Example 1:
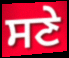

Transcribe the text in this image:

ਸਣੇ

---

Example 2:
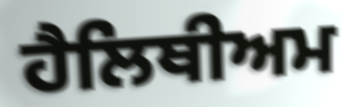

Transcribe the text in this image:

ਹੈਲਿਥੀਅਮ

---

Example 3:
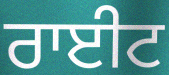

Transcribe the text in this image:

ਰਾਈਟ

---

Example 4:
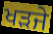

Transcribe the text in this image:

ਖੜਜੇ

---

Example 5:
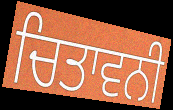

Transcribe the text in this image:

ਚਿਤਾਵਨੀ